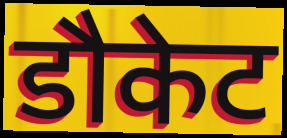
डौकेट